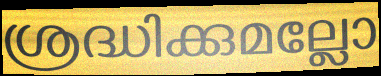
ശ്രദ്ധിക്കുമല്ലോ